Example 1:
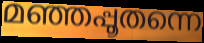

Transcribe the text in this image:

മഞ്ഞപ്പൂതന്നെ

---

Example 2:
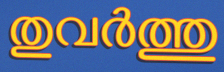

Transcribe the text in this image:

തുവർത്തു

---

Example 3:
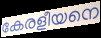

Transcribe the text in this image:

കേരളീയനെ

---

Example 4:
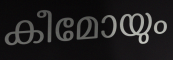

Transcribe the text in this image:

കീമോയും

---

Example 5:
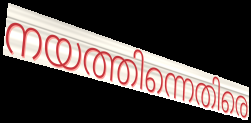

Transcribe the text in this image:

നയത്തിന്നെതിരെ